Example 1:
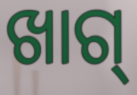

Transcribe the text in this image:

ଖାଗ୍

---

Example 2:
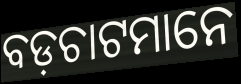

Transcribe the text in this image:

ବଡ଼ଚାଟମାନେ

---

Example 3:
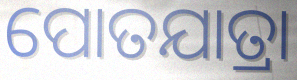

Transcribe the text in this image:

ପୋତଯାତ୍ରା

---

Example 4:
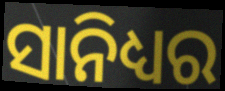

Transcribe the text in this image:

ସାନିଧ୍ୟର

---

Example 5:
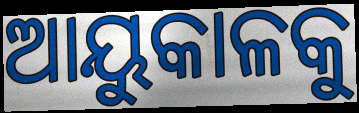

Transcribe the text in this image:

ଆୟୁକାଳକୁ